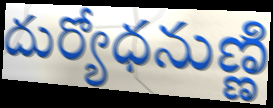
దుర్యోధనుణ్ణి